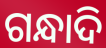
ଗନ୍ଧାଦି